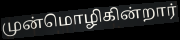
முன்மொழிகின்றார்